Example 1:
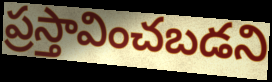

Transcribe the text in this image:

ప్రస్తావించబడని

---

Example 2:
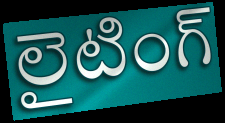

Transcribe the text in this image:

లైటింగ్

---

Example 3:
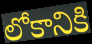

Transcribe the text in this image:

లోకానికి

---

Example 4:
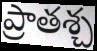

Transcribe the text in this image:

ప్రాతశ్చ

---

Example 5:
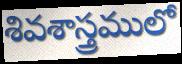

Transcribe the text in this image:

శివశాస్త్రములో